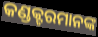
କଣ୍ଡକ୍ଟରମାନଙ୍କ